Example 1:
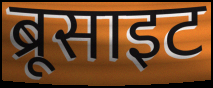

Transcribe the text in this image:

ब्रूसाइट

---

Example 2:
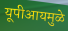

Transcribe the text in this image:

यूपीआयमुळे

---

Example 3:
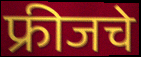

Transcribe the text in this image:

फ्रीजचे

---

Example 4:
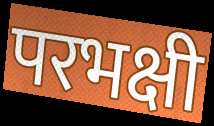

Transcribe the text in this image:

परभक्षी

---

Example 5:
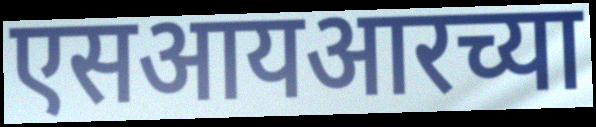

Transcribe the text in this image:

एसआयआरच्या